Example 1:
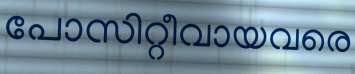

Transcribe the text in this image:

പോസിറ്റീവായവരെ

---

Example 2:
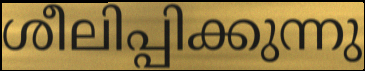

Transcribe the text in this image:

ശീലിപ്പിക്കുന്നു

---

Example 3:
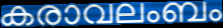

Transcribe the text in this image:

കരാവലംബം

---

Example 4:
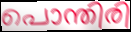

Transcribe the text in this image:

പൊന്തിരി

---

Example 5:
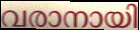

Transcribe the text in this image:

വരാനായി